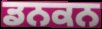
ਡਨਕਨ